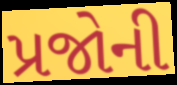
પ્રજોની